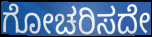
ಗೋಚರಿಸದೇ